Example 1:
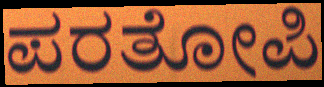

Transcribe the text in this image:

ಪರತೋಪಿ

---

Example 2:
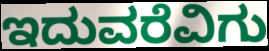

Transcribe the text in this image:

ಇದುವರೆವಿಗು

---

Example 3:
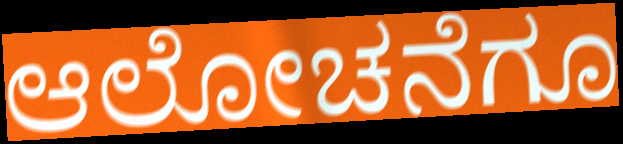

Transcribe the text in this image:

ಆಲೋಚನೆಗೂ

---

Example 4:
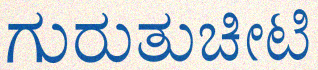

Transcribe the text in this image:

ಗುರುತುಚೀಟಿ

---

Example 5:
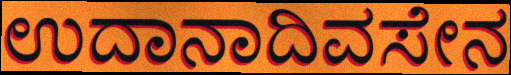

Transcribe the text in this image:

ಉದಾನಾದಿವಸೇನ